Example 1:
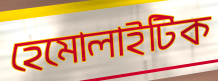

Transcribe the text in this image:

হেমোলাইটিক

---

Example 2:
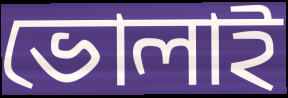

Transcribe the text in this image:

ভোলাই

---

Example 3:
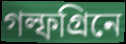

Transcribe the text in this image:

গল্ফগ্রিনে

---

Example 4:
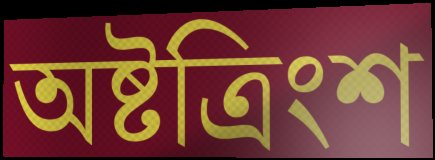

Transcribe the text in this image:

অষ্টত্রিংশ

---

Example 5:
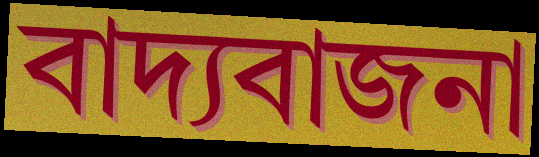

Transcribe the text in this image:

বাদ্যবাজনা